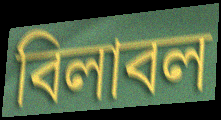
বিলাবল